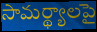
సామర్థ్యాలపై